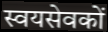
स्वयसेवकों